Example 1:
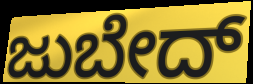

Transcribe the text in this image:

ಜುಬೇದ್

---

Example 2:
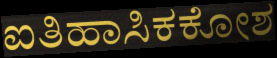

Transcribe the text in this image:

ಐತಿಹಾಸಿಕಕೋಶ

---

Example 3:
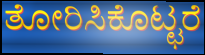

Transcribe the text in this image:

ತೋರಿಸಿಕೊಟ್ಟರೆ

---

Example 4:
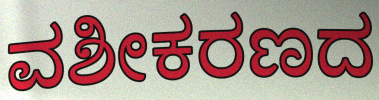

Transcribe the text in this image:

ವಶೀಕರಣದ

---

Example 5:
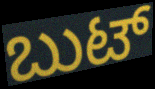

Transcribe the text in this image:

ಬುಟ್